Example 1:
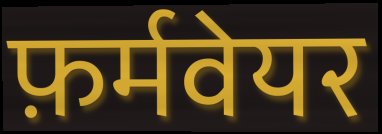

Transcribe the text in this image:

फ़र्मवेयर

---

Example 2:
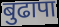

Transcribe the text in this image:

बुढापा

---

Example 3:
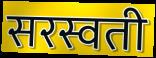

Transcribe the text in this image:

सरस्‍वती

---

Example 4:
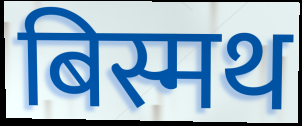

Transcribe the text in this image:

बिस्मथ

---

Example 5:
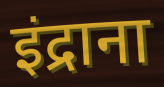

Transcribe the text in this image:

इंद्राना